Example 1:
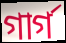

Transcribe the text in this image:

গাৰ্গ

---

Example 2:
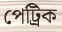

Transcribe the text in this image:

পেট্ৰিক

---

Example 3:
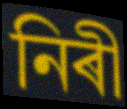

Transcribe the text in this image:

নিৰী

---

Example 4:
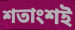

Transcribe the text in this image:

শতাংশই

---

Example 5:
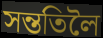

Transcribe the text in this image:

সন্ততিলৈ